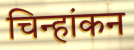
चिन्हांकन